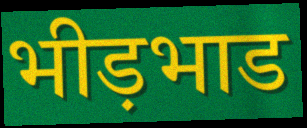
भीड़भाड